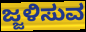
ಜ್ಜಳಿಸುವ